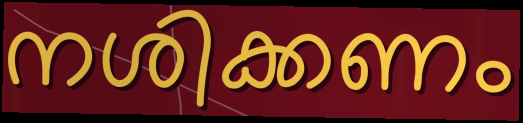
നശിക്കണം